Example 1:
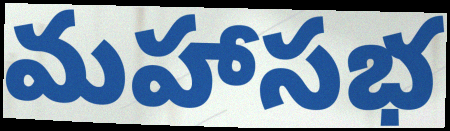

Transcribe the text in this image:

మహాసభ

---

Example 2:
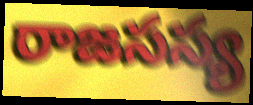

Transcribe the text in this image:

రాజసస్య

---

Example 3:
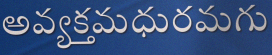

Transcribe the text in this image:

అవ్యక్తమధురమగు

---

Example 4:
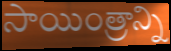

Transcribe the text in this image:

సాయింత్రాన్ని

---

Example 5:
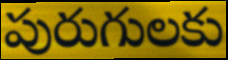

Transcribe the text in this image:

పురుగులకు